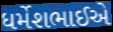
ધર્મેશભાઈએ